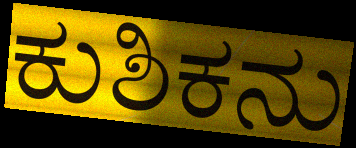
ಕುಶಿಕನು